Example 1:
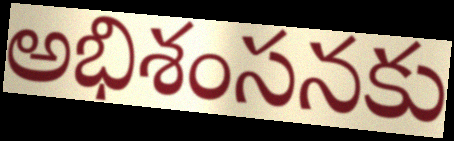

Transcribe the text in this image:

అభిశంసనకు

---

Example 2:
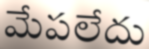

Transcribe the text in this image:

మేపలేదు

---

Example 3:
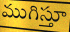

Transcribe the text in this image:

ముగిస్తూ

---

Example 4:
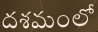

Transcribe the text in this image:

దశమంలో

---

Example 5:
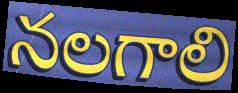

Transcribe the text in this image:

నలగాలి